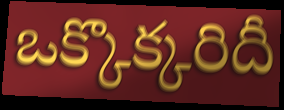
ఒక్కొక్కరిదీ